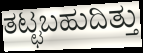
ತಟ್ಟಬಹುದಿತ್ತು